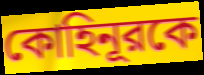
কোহিনূরকে